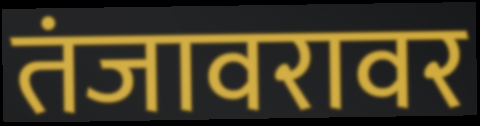
तंजावरावर